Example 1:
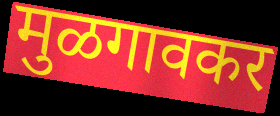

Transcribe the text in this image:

मुळगावकर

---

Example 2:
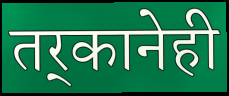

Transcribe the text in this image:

तर्कानेही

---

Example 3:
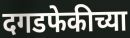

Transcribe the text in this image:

दगडफेकीच्या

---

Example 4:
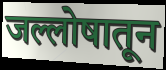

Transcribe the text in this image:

जल्लोषातून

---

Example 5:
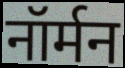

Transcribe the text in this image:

नॉर्मन